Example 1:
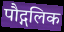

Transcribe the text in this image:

पौद्गलिक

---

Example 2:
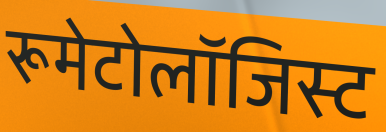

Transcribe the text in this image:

रूमेटोलॉजिस्ट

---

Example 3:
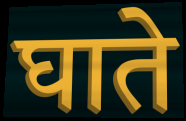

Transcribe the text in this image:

घाते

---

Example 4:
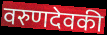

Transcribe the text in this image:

वरुणदेवकी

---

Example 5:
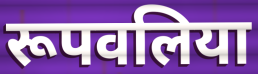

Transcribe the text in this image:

रूपवलिया